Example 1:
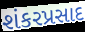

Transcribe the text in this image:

શંકરપ્રસાદ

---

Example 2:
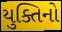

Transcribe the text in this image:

યુક્તિનો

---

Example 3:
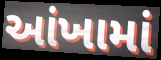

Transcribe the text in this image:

આંખામાં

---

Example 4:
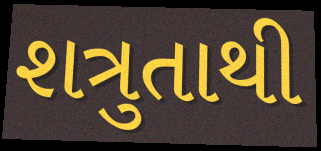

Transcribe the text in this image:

શત્રુતાથી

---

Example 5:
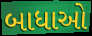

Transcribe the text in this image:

બાધાઓ